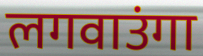
लगवाउंगा